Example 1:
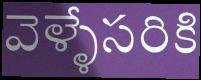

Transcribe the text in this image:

వెళ్ళేసరికి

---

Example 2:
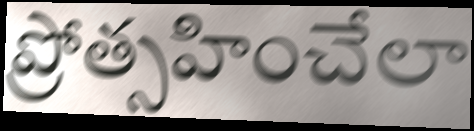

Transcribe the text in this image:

ప్రోత్సహించేలా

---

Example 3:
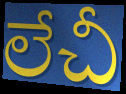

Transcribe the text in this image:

లేచీ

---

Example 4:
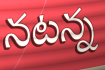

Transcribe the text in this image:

నటన్న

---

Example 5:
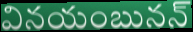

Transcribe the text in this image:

వినయంబునన్